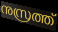
നുസ്രത്ത്